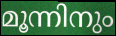
മൂന്നിനും